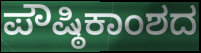
ಪೌಷ್ಠಿಕಾಂಶದ